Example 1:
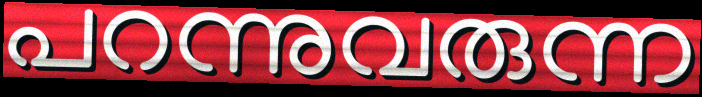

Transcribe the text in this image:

പറന്നുവരുന്ന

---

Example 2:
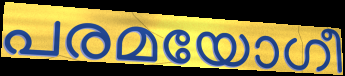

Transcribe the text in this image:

പരമയോഗീ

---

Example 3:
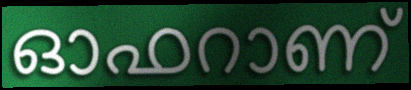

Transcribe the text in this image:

ഓഫറാണ്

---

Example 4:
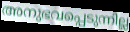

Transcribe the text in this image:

അനുഭവപ്പെടുന്നില്ല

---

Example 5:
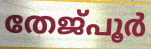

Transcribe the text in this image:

തേജ്പൂർ